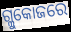
ଗ୍ଲୁକୋଜରେ